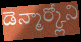
డెన్మార్క్లోని